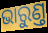
ଭାରୁଣ୍ତ